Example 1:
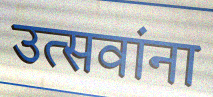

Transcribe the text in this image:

उत्सवांना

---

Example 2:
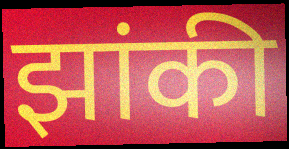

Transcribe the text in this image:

झांकी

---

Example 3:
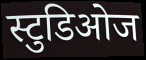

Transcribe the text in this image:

स्टुडिओज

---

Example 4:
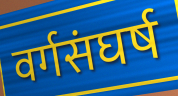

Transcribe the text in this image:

वर्गसंघर्ष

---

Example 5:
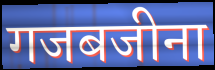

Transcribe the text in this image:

गजबजीना